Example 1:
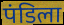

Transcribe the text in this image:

पंडिला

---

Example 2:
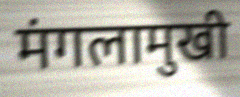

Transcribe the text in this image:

मंगलामुखी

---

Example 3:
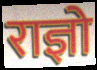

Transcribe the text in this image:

राज्ञो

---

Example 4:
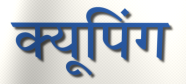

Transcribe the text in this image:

क्यूपिंग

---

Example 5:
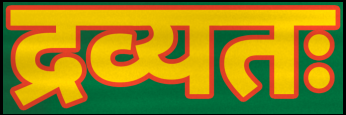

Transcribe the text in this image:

द्रव्यतः